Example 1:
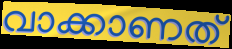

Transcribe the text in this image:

വാക്കാണത്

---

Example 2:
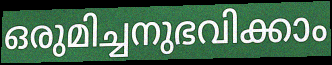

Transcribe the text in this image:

ഒരുമിച്ചനുഭവിക്കാം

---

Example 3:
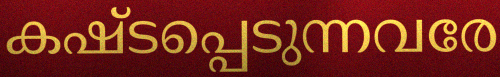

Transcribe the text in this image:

കഷ്ടപ്പെടുന്നവരേ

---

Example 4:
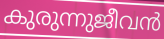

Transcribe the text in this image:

കുരുന്നുജീവൻ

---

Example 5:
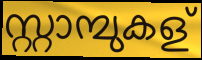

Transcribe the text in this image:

സ്റ്റാമ്പുകള്